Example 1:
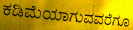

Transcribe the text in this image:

ಕಡಿಮೆಯಾಗುವವರೆಗೂ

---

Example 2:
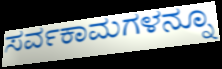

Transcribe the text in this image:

ಸರ್ವಕಾಮಗಳನ್ನೂ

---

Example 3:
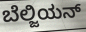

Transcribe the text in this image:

ಬೆಲ್ಜಿಯನ್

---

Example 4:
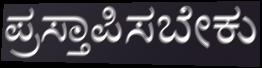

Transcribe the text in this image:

ಪ್ರಸ್ತಾಪಿಸಬೇಕು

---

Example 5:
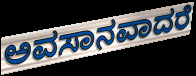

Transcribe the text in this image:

ಅವಸಾನವಾದರೆ